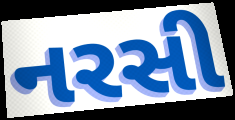
નરસી